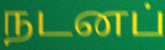
நடனப்